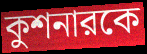
কুশনারকে